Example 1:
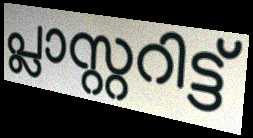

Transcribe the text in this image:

പ്ലാസ്റ്ററിട്ട്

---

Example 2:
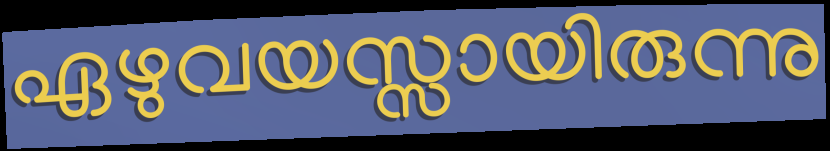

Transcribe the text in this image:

ഏഴുവയസ്സായിരുന്നു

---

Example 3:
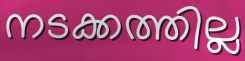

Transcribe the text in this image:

നടക്കത്തില്ല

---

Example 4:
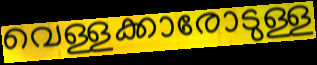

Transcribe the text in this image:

വെള്ളക്കാരോടുള്ള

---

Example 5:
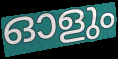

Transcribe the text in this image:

ഓളും